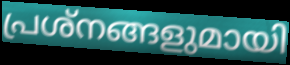
പ്രശ്നങ്ങളുമായി